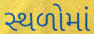
સ્થળોમાં